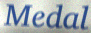
Medal